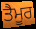
ਤੈਮੂਰ